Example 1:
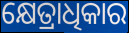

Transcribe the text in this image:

କ୍ଷେତ୍ରାଧିକାର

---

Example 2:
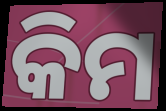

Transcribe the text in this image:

କିମ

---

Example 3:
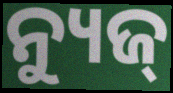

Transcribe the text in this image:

ନ୍ୟୁଜ୍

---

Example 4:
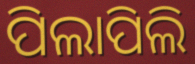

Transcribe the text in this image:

ପିଲାପିଲି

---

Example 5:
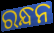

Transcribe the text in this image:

ରନ୍ଧନ